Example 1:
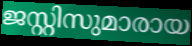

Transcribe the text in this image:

ജസ്റ്റിസുമാരായ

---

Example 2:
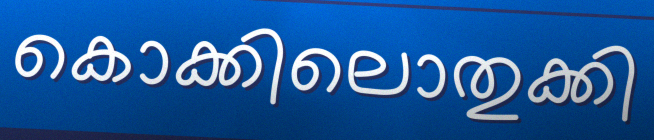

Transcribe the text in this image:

കൊക്കിലൊതുക്കി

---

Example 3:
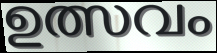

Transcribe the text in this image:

ഉത്സവം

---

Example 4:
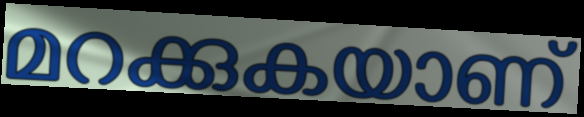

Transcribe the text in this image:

മറക്കുകയാണ്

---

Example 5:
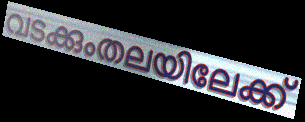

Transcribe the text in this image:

വടക്കുംതലയിലേക്ക്